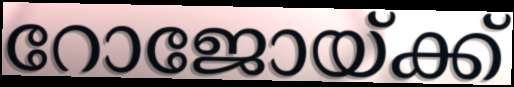
റോജോയ്ക്ക്